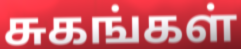
சுகங்கள்